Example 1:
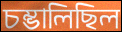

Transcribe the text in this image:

চম্ভালিছিল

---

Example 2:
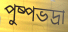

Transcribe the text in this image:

পুষ্পভদ্ৰা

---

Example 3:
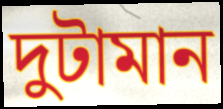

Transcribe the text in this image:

দুটামান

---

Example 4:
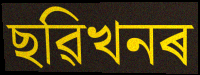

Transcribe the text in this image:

ছৱিখনৰ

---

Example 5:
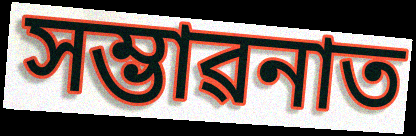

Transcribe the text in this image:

সম্ভাৱনাত